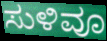
ಸುಳಿವೂ